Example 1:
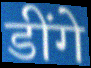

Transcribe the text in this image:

डींगे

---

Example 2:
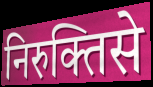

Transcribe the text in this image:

निरुक्तिसे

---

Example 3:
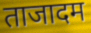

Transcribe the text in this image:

ताजादम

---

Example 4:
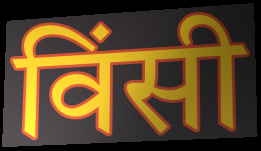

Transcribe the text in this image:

विंसी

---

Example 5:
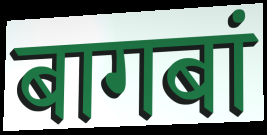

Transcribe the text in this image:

बागबां